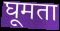
घूमता